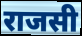
राजसी